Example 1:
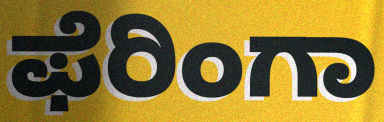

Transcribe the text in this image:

ಫೆರಿಂಗಾ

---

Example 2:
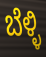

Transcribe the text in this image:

ಬೆಳ್ಳಿ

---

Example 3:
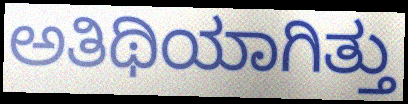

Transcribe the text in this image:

ಅತಿಥಿಯಾಗಿತ್ತು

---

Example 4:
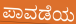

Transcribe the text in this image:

ಪಾವಡೆಯ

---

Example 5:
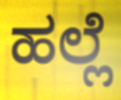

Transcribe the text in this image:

ಹಲ್ಲೆ